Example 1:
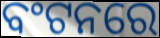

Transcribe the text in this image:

ବଂଟନରେ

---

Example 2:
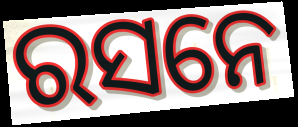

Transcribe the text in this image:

ରସନେ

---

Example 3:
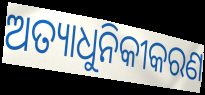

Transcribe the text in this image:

ଅତ୍ୟାଧୁନିକୀକରଣ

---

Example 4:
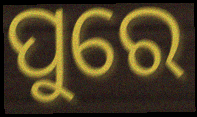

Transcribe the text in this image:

ପୁରେ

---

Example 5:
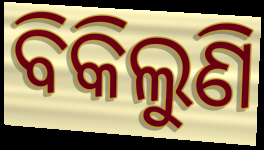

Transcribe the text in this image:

ବିକିଲୁଣି